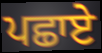
ਪਛਾਏ